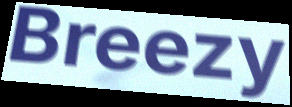
Breezy